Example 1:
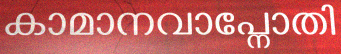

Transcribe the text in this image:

കാമാനവാപ്നോതി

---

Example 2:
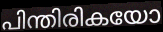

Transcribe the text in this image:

പിന്തിരികയോ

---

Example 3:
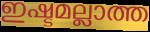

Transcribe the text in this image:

ഇഷ്ടമല്ലാത്ത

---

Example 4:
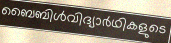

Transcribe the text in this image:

ബൈബിൾവിദ്യാർഥികളുടെ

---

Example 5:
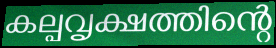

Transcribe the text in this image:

കല്പവൃക്ഷത്തിന്റെ